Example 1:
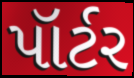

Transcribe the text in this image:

પૉર્ટર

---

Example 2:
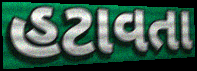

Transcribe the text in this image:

હટાવતા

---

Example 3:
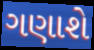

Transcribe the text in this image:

ગણાશે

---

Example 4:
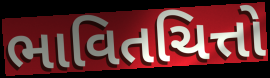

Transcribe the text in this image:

ભાવિતચિત્તો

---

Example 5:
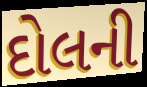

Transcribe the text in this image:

દોલની